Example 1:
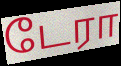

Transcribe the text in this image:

டேரா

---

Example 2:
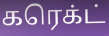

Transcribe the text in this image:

கரெக்ட்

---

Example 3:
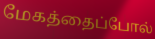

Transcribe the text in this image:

மேகத்தைப்போல்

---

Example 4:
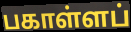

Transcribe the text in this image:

பகாள்ளப்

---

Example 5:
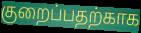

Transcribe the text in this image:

குறைப்பதற்காக